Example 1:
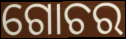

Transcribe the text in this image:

ଗୋଚର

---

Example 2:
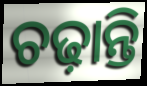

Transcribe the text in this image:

ଚଢ଼ାନ୍ତି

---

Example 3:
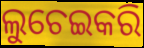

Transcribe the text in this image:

ଲୁଚେଇକରି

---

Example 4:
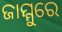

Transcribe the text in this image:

ଜାମ୍ମୁରେ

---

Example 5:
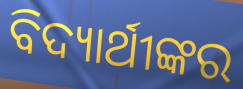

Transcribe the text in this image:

ବିଦ୍ୟାର୍ଥୀଙ୍କର